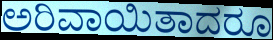
ಅರಿವಾಯಿತಾದರೂ